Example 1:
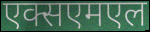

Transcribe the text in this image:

एक्सएमएल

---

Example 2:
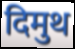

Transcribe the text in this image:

दिमुथ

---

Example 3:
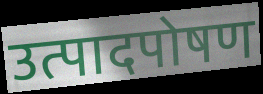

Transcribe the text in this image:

उत्पादपोषण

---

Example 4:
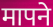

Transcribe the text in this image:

मापने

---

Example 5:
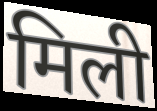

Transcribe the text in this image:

मिली